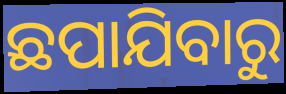
ଛପାଯିବାରୁ